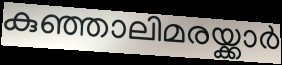
കുഞ്ഞാലിമരയ്ക്കാർ